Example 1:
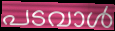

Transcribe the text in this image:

പടവാൾ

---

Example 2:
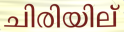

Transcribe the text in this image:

ചിരിയില്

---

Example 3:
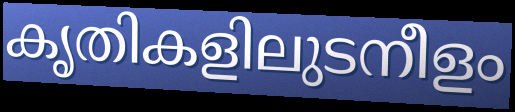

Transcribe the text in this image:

കൃതികളിലുടനീളം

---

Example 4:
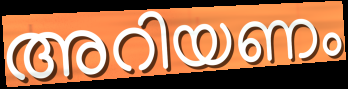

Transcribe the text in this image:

അറിയണം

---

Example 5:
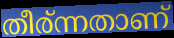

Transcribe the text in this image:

തീര്ന്നതാണ്